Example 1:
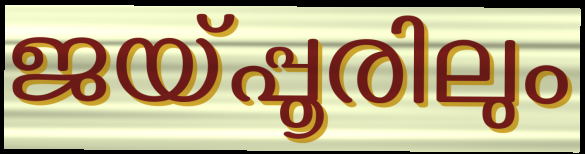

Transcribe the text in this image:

ജയ്പ്പൂരിലും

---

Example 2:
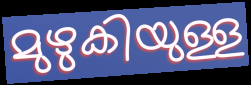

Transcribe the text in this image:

മുഴുകിയുള്ള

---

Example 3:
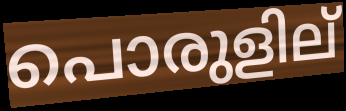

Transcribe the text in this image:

പൊരുളില്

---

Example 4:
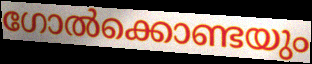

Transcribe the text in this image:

ഗോൽക്കൊണ്ടയും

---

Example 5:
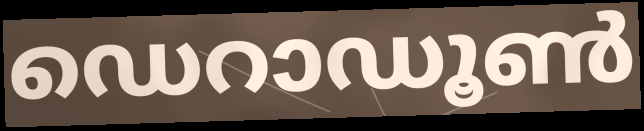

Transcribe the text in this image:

ഡെറാഡൂൺ